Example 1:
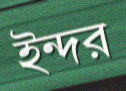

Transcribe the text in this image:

ইন্দর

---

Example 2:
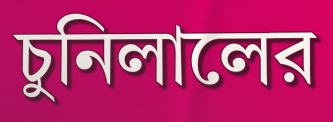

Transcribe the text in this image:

চুনিলালের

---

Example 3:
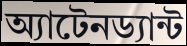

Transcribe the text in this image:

অ্যাটেনড্যান্ট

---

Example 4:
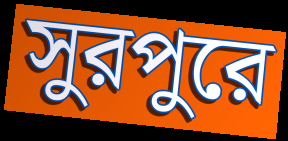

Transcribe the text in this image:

সুরপুরে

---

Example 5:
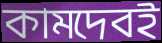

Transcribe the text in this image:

কামদেবই